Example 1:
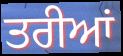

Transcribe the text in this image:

ਤਰੀਆਂ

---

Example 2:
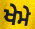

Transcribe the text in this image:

ਖੇਮੇ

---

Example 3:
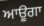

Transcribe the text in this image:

ਆਊਗਾ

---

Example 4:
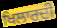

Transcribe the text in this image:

ਖਿਲਾਰਦੀ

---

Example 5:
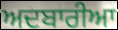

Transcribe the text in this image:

ਅਦਬਾਰੀਆ